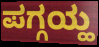
ಪಗ್ಗಯ್ಹ